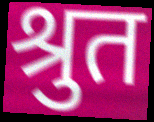
श्रुत